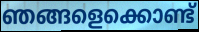
ഞങ്ങളെക്കൊണ്ട്